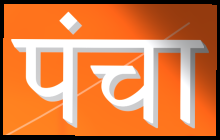
पंचा